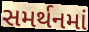
સમર્થનમાં